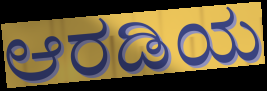
ಆರಡಿಯ